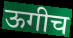
ऊगीच